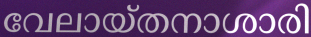
വേലായ്തനാശാരി